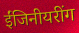
ईंजिनीयरींग